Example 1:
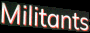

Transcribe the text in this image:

Militants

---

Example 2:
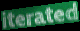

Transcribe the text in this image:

iterated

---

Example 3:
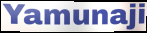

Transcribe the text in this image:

Yamunaji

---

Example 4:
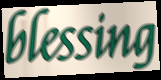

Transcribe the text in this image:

blessing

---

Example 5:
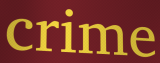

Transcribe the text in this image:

crime